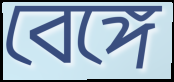
বেঙ্গে